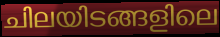
ചിലയിടങ്ങളിലെ